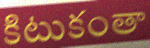
కిటుకంతా